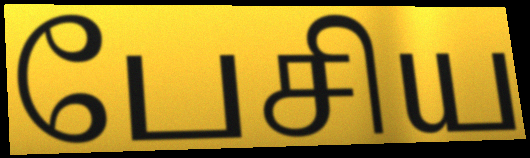
பேசிய